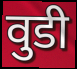
वुडी